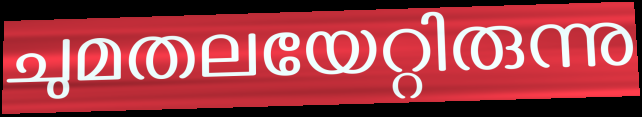
ചുമതലയേറ്റിരുന്നു